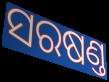
ସରଷଣ୍ତ